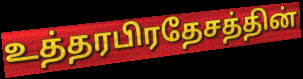
உத்தரபிரதேசத்தின்